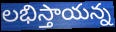
లభిస్తాయన్న